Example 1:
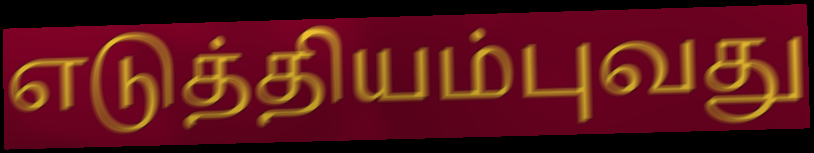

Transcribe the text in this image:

எடுத்தியம்புவது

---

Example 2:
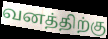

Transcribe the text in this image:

வனத்திற்கு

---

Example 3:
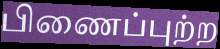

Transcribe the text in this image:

பிணைப்புற்ற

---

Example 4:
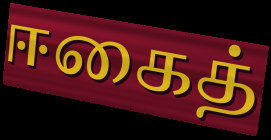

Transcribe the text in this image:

ஈகைத்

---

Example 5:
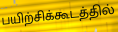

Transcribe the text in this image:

பயிற்சிக்கூடத்தில்